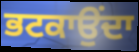
ਭਟਕਾਉਂਦਾ